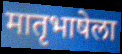
मातृभाषेला